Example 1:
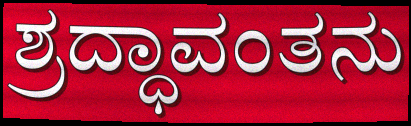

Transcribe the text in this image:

ಶ್ರದ್ಧಾವಂತನು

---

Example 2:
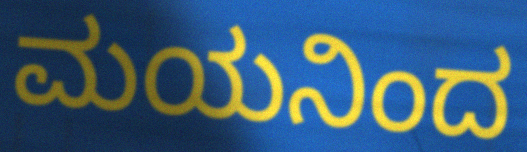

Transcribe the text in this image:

ಮಯನಿಂದ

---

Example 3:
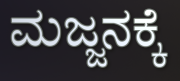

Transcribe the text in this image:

ಮಜ್ಜನಕ್ಕೆ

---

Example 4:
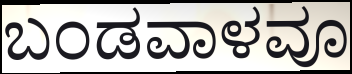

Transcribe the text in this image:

ಬಂಡವಾಳವೂ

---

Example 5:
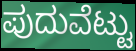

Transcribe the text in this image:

ಪುದುವೆಟ್ಟು